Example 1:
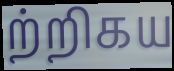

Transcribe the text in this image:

ற்றிகய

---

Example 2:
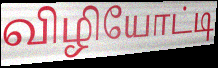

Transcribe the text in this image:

விழியோட்டி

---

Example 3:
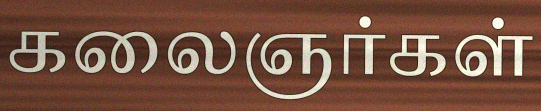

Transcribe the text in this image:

கலைஞர்கள்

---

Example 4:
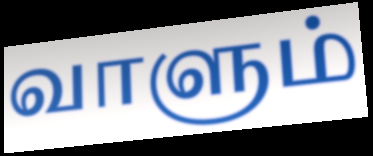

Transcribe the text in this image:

வாளும்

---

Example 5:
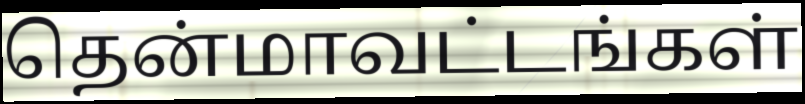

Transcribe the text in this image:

தென்மாவட்டங்கள்